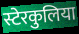
स्टेरकुलिया